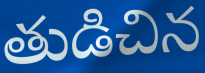
తుడిచిన